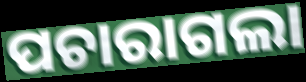
ପଚାରାଗଲା